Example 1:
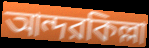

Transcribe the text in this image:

আন্দরকিল্লা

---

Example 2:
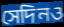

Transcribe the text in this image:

সেদিনও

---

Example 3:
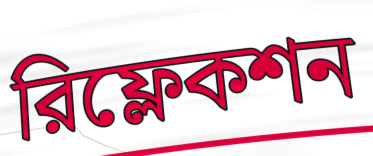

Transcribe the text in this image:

রিফ্লেকশন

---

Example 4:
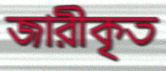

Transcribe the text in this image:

জারীকৃত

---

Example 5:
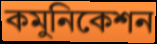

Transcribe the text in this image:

কমুনিকেশন